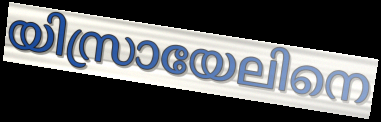
യിസ്രായേലിനെ